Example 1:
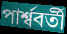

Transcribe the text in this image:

পাৰ্শ্ববৰ্তী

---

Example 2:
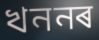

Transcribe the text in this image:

খননৰ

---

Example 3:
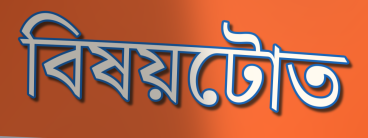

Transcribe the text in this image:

বিষয়টোত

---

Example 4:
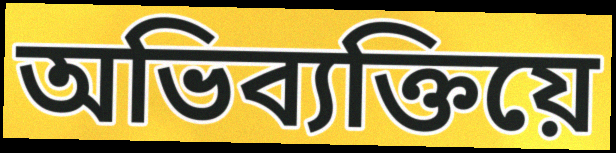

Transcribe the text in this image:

অভিব্যক্তিয়ে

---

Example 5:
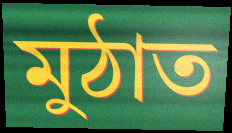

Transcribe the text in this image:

মুঠাত